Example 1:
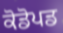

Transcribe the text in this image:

ਕੋਡੋਪਡ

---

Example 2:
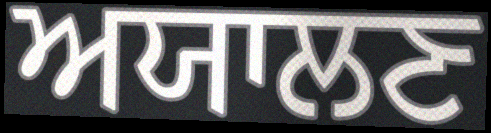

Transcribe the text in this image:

ਅਯਾਲਣ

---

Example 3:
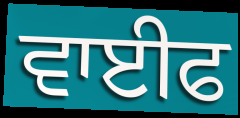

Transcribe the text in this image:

ਵਾਈਫ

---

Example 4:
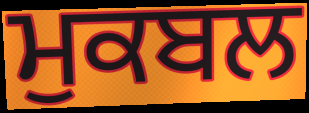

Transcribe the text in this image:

ਮੁਕਬਲ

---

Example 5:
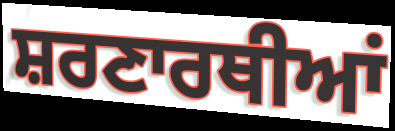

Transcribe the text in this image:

ਸ਼ਰਣਾਰਥੀਆਂ